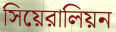
সিয়েরালিয়ন